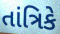
તાંત્રિકે